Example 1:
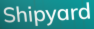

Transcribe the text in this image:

Shipyard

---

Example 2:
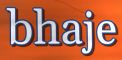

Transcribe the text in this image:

bhaje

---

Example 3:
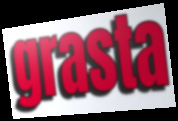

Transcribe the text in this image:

grasta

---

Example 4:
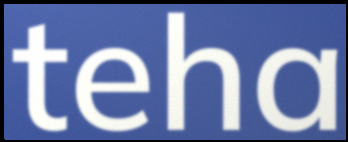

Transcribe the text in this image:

teha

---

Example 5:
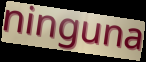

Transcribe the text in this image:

ninguna